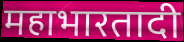
महाभारतादी